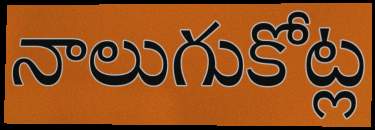
నాలుగుకోట్ల